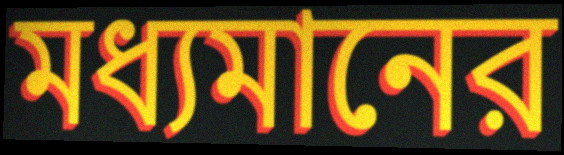
মধ্যমানের